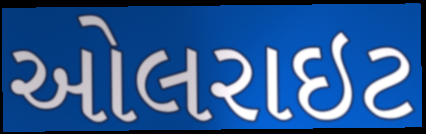
ઓલરાઇટ